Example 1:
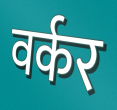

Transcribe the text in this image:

वर्कर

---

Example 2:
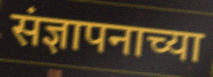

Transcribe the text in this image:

संज्ञापनाच्या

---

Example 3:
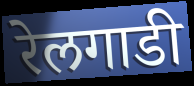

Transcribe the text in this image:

रेलगाडी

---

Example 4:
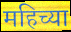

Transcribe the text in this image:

महिच्या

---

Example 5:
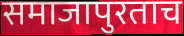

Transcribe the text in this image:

समाजापुरताच